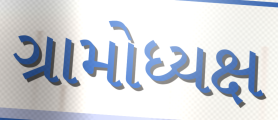
ગ્રામોધ્યક્ષ